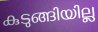
കുടുങ്ങിയില്ല